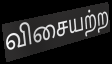
விசையற்ற